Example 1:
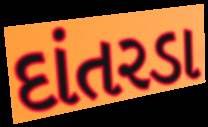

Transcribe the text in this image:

દાંતરડા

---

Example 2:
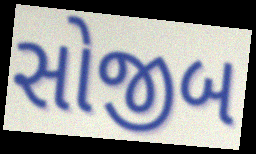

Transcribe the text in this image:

સોજીબ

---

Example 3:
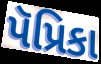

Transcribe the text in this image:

પૅપ્રિકા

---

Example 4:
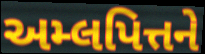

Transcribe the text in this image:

અમ્લપિત્તને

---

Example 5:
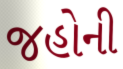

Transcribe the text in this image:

જહોની